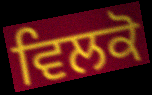
ਵਿਲਕੋ